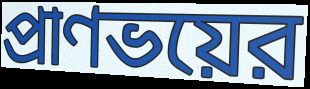
প্রাণভয়ের